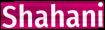
Shahani